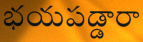
భయపడ్డారా